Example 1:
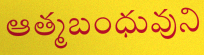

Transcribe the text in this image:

ఆత్మబంధువుని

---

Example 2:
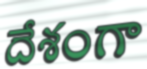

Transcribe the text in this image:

దేశంగా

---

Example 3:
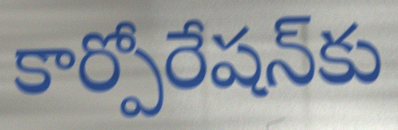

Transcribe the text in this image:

కార్పోరేషన్‌కు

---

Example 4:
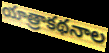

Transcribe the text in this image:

యాత్రాకథనాల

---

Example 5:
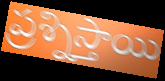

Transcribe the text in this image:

ప్రశ్నిస్తాయి